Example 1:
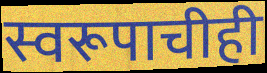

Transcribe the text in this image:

स्वरूपाचीही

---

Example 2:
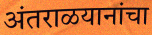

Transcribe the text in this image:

अंतराळयानांचा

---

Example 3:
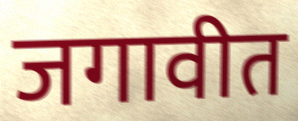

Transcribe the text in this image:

जगावीत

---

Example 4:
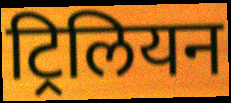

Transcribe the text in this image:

ट्रिलियन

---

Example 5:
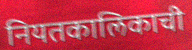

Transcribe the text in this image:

नियतकालिकाची